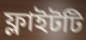
ফ্লাইটটি